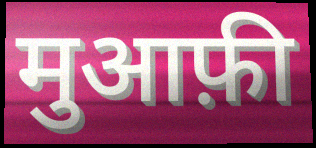
मुआफ़ी